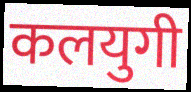
कलयुगी